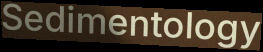
Sedimentology